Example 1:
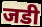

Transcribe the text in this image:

जडी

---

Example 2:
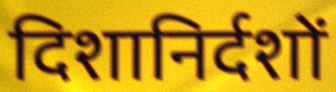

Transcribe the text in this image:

दिशानिर्दशों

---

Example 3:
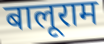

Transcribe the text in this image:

बालूराम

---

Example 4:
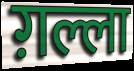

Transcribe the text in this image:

ग़ल्ला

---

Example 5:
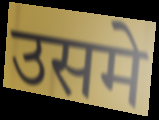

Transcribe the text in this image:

उसमे